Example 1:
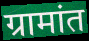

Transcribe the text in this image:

ग्रामांत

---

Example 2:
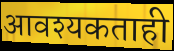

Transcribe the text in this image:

आवश्यकताही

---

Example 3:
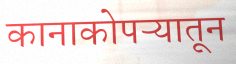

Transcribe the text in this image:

कानाकोपऱ्यातून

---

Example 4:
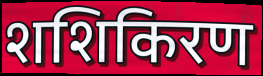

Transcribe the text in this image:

शशिकिरण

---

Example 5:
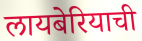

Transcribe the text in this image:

लायबेरियाची